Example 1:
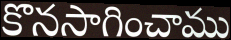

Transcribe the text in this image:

కొనసాగించాము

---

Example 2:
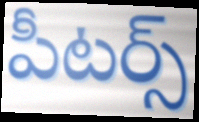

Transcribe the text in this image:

పీటర్స్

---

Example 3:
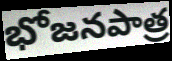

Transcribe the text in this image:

భోజనపాత్ర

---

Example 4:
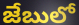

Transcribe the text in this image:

జేబులో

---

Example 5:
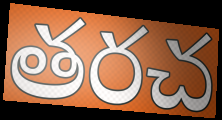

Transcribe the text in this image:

తరచ